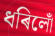
ধৰিলোঁ